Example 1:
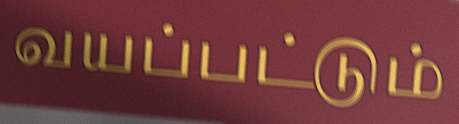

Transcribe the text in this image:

வயப்பட்டும்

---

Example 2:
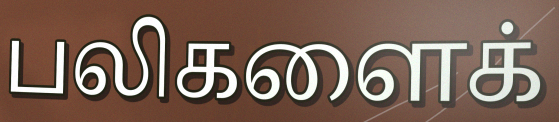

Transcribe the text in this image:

பலிகளைக்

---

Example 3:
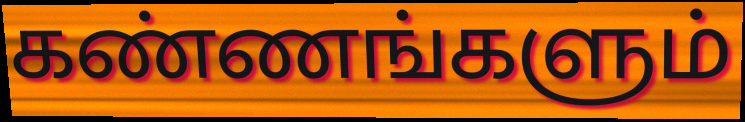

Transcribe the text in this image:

கண்ணங்களும்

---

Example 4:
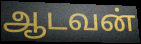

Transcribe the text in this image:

ஆடவன்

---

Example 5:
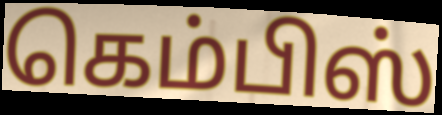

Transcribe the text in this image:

கெம்பிஸ்